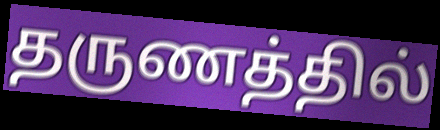
தருணத்தில்